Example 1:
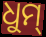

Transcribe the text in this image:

ଧୁମ୍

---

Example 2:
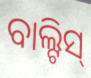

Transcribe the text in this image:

ବାଲ୍ଟିସ୍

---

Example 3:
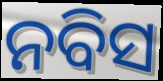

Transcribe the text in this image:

ନବିସ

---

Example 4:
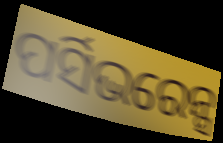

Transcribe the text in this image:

ପର୍ସିଭରେନ୍ସ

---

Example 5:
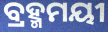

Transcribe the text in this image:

ବ୍ରହ୍ମମୟୀ